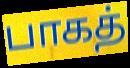
பாகத்